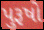
પુરૂષો